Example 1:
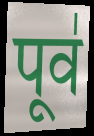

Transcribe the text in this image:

पूव॑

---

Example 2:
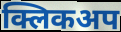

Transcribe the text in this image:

क्लिकअप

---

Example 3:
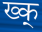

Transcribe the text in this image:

ख्क्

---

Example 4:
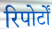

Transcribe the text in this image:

रिपोर्टों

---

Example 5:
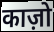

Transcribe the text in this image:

काज़ो